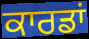
ਕਾਰਡਾਂ